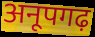
अनूपगढ़